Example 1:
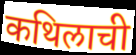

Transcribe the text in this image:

कथिलाची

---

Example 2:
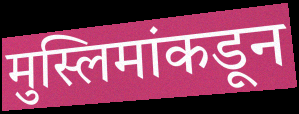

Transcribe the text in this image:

मुस्लिमांकडून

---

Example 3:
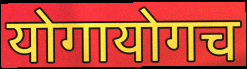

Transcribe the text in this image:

योगायोगच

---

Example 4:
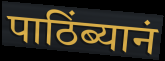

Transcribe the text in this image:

पाठिंब्यानं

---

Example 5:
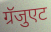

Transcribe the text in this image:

ग्रॅजुएट